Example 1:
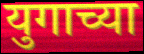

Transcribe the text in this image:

युगाच्या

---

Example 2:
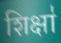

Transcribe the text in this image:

शिक्षा॑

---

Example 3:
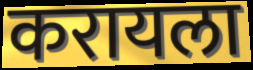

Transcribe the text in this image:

करायला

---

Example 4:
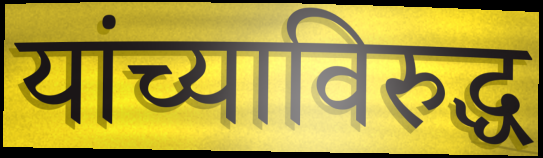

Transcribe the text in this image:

यांच्याविरुद्ध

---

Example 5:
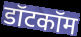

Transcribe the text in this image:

डॉटकॉम